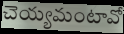
చెయ్యమంటావో